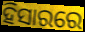
ହିସାରରେ